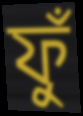
ফুঁ